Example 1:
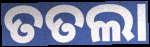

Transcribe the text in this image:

ତତଲା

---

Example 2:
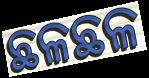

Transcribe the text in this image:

ଛଳଛଳ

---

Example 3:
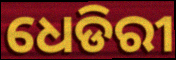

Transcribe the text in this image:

ଧେଡିରୀ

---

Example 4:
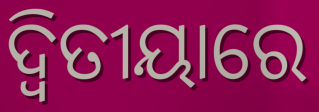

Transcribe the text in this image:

ଦ୍ଵିତୀୟାରେ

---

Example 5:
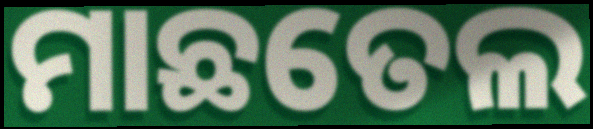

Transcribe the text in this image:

ମାଛତେଲ